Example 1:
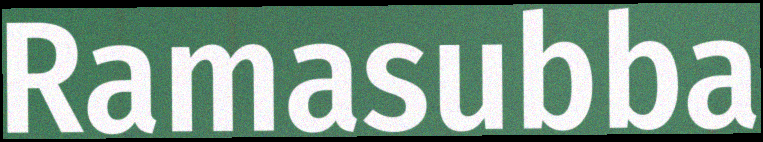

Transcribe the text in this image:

Ramasubba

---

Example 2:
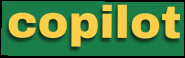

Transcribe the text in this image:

copilot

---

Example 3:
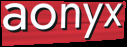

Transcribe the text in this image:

aonyx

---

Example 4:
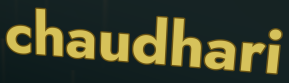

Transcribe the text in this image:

chaudhari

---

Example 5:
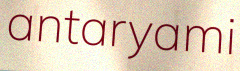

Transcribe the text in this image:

antaryami